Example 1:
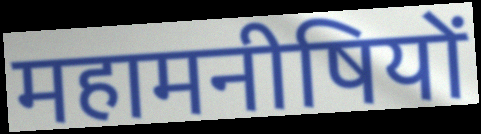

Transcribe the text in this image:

महामनीषियों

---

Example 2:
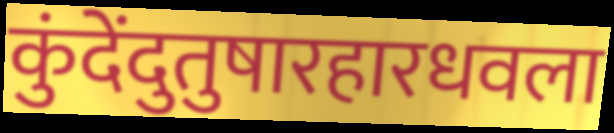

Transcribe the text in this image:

कुंदेंदुतुषारहारधवला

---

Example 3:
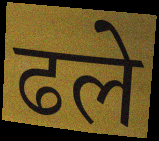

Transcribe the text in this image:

ढले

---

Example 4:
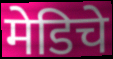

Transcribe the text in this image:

मेडिचे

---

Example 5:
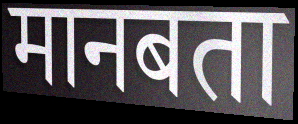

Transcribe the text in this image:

मानबता